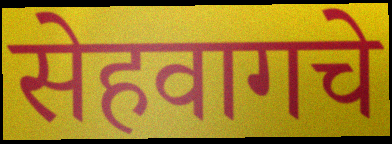
सेहवागचे